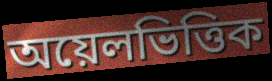
অয়েলভিত্তিক